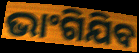
ଭାଂଗିଯିବ